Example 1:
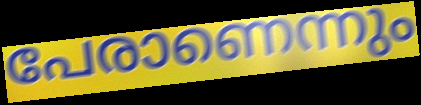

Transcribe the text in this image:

പേരാണെന്നും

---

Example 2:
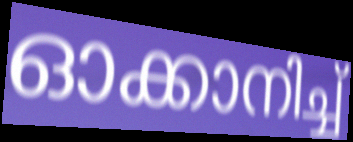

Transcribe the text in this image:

ഓക്കാനിച്ച്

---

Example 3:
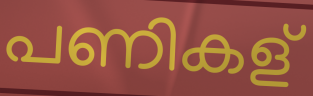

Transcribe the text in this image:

പണികള്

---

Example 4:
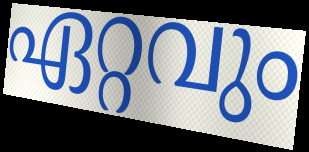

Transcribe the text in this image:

ഏറ്റവും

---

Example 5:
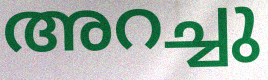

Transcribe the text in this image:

അറച്ചു